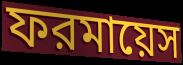
ফরমায়েস